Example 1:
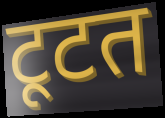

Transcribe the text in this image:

टूटत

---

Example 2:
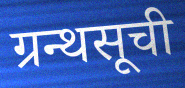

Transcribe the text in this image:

ग्रन्थसूची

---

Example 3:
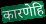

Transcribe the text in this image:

कारणेहि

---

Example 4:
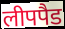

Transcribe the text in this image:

लीपपैड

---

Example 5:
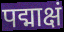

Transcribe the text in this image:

पद्माक्षं